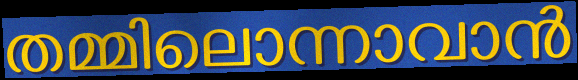
തമ്മിലൊന്നാവാൻ